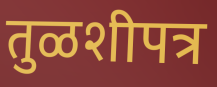
तुळशीपत्र